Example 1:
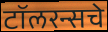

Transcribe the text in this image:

टॉलरन्सचे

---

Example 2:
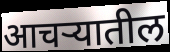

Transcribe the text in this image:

आचऱ्यातील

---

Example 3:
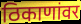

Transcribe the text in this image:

ठिकाणांवर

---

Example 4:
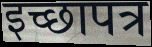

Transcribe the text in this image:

इच्छापत्र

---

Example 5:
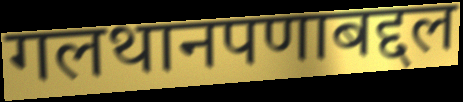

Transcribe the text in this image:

गलथानपणाबद्दल